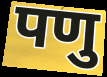
पणु